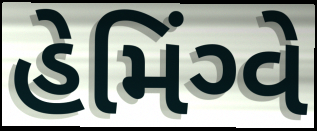
હેમિંગ્વે